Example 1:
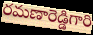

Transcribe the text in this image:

రమణారెడ్డిగారి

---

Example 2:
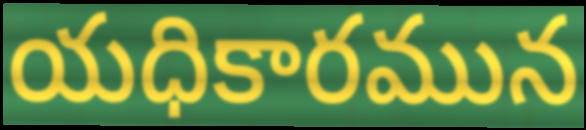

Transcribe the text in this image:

యధికారమున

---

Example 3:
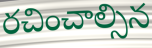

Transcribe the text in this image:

రచించాల్సిన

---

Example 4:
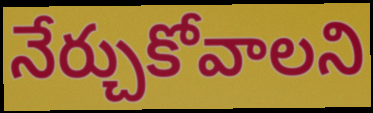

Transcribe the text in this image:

నేర్చుకోవాలని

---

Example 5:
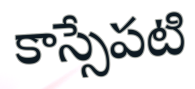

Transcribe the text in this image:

కాస్సేపటి